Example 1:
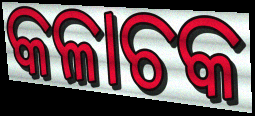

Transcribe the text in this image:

କଳାଚକ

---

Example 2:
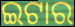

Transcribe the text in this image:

ଇଟାର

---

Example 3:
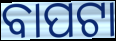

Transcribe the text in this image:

ବାପଟା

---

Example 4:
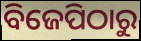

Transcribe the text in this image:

ବିଜେପିଠାରୁ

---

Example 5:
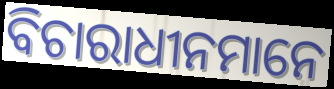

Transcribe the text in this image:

ବିଚାରାଧୀନମାନେ